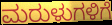
ಮರುಳುಗಳಿಗೆ